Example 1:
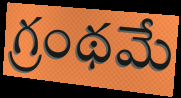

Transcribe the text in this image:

గ్రంథమే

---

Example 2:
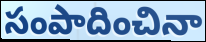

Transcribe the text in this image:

సంపాదించినా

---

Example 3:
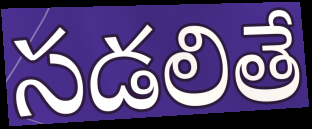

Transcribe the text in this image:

సడలితే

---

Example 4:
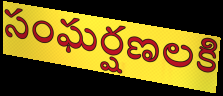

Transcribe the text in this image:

సంఘర్షణలకి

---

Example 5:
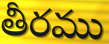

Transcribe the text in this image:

తీరము